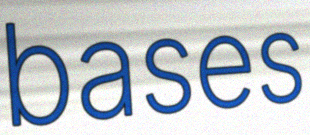
bases